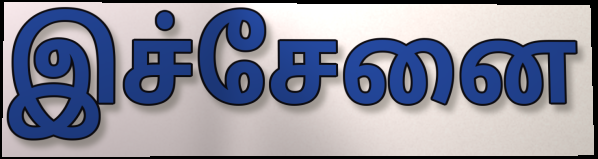
இச்சேனை